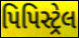
પિપિસ્ટ્રેલ